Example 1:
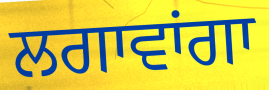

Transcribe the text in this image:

ਲਗਾਵਾਂਗਾ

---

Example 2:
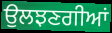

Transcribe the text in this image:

ਉਲਝਣਗੀਆਂ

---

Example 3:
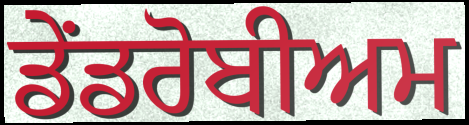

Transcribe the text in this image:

ਡੇਂਡਰੋਬੀਅਮ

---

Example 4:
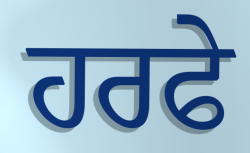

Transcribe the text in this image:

ਹਰਫੇ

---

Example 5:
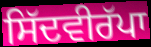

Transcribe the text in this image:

ਸਿੱਦਵੀਰੱਪਾ